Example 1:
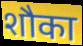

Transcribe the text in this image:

शौका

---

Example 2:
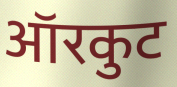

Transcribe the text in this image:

ऑरकुट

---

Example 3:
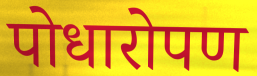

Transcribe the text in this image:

पोधारोपण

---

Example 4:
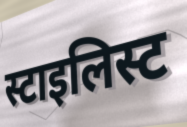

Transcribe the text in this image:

स्टाइलिस्ट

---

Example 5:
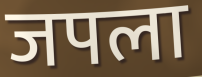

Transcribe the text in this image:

जपला